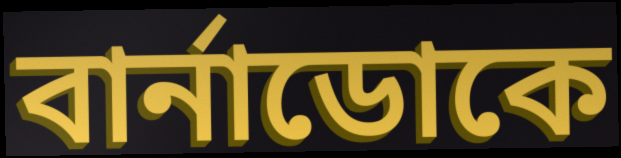
বার্নাডোকে